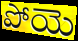
పోయె